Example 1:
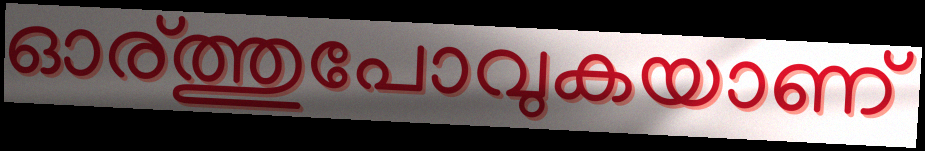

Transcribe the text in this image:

ഓര്ത്തുപോവുകയാണ്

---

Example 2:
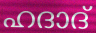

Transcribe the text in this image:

ഹദാദ്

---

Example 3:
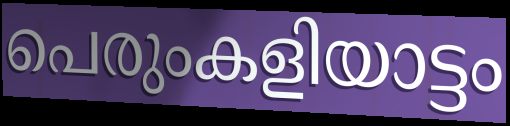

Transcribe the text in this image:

പെരുംകളിയാട്ടം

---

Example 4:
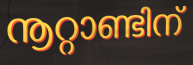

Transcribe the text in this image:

നൂറ്റാണ്ടിന്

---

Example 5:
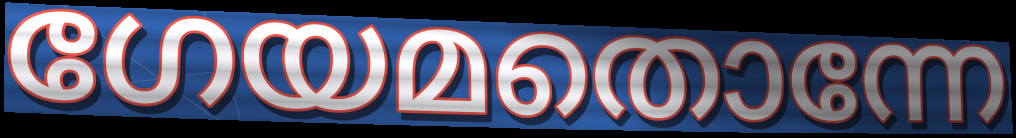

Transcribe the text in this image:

ഗേയമതൊന്നേ